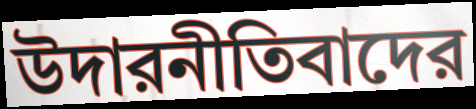
উদারনীতিবাদের